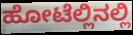
ಹೋಟೆಲ್ಲಿನಲ್ಲಿ